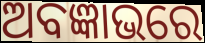
ଅବଜ୍ଞାଭରେ